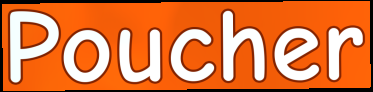
Poucher